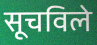
सूचविले